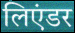
लिएंडर